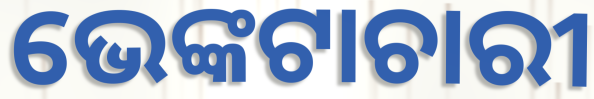
ଭେଙ୍କଟାଚାରୀ